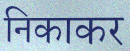
निकाकर